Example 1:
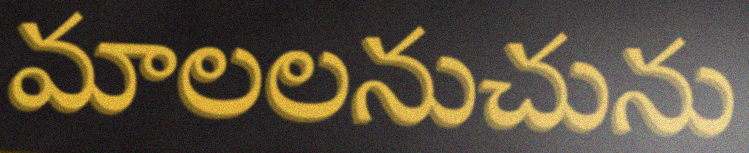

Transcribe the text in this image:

మాలలనుచును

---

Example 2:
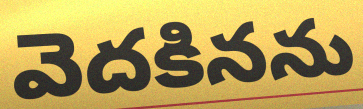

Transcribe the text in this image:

వెదకినను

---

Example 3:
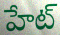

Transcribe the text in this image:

హేట్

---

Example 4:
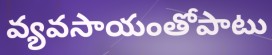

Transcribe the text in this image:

వ్యవసాయంతోపాటు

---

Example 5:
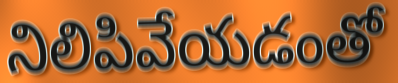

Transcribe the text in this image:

నిలిపివేయడంతో